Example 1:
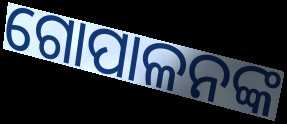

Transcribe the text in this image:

ଗୋପାଳନଙ୍କ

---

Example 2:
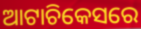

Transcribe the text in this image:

ଆଟାଚିକେସରେ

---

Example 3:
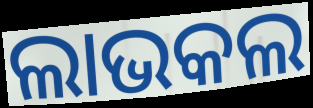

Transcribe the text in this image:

ଲାଭକଲ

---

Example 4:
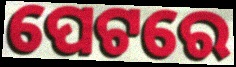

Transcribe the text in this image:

ପେଟରେ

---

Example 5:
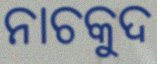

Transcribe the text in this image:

ନାଚକୁଦ